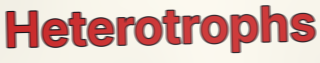
Heterotrophs